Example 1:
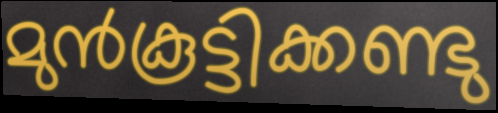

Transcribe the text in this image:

മുൻകൂട്ടിക്കണ്ടു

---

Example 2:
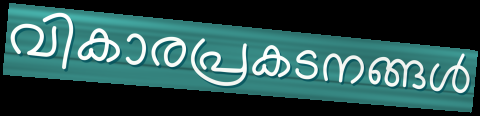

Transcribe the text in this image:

വികാരപ്രകടനങ്ങൾ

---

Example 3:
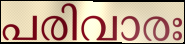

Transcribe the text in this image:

പരിവാരഃ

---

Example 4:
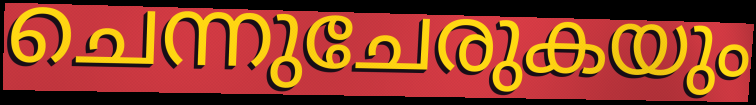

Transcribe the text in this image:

ചെന്നുചേരുകയും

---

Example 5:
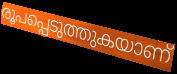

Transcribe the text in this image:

രൂപപ്പെടുത്തുകയാണ്